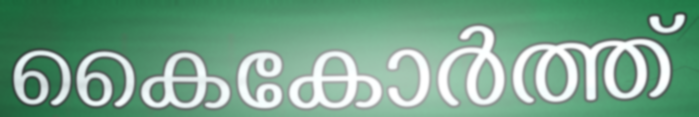
കൈകോർത്ത്